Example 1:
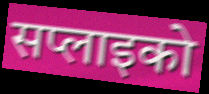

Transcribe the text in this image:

सप्लाइको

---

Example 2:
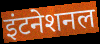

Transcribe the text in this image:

इंटनेशनल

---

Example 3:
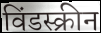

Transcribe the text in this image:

विंडस्क्रीन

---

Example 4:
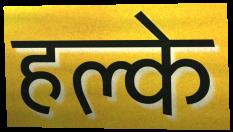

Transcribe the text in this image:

हल्‍के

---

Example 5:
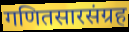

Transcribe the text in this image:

गणितसारसंग्रह